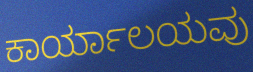
ಕಾರ್ಯಾಲಯವು